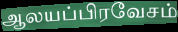
ஆலயப்பிரவேசம்